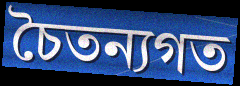
চৈতন্যগত